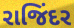
રાજિંદર